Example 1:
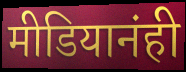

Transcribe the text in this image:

मीडियानंही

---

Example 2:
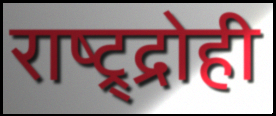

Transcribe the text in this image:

राष्ट्र्द्रोही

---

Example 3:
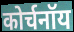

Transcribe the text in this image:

कोर्चनॉय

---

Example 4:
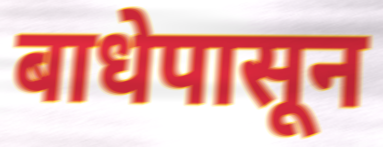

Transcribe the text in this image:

बाधेपासून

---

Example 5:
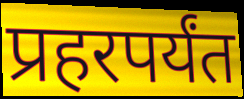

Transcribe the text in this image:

प्रहरपर्यंत